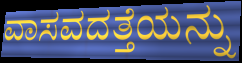
ವಾಸವದತ್ತೆಯನ್ನು